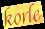
korle